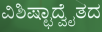
ವಿಶಿಷ್ಟಾದ್ವೈತದ